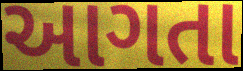
આગતા